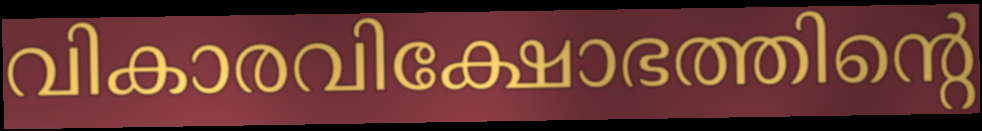
വികാരവിക്ഷോഭത്തിന്റെ